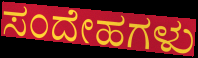
ಸಂದೇಹಗಳು